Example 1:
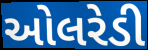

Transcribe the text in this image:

ઓલરેડી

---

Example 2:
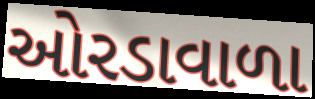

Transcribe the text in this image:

ઓરડાવાળા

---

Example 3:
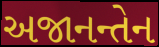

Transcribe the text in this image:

અજાનન્તેન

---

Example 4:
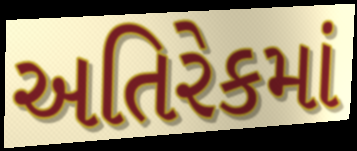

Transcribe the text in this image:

અતિરેકમાં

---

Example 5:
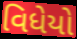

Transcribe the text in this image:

વિધેયો